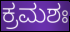
ಕ್ರಮಶಃ